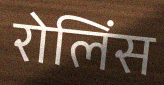
रोलिंस